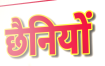
छैनियों